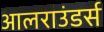
आलराउंडर्स